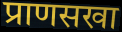
प्राणसखा